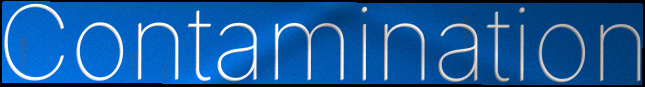
Contamination